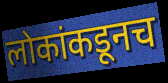
लोकांकडूनच